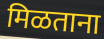
मिळताना